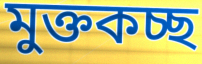
মুক্তকচ্ছ